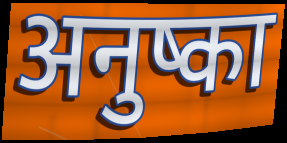
अनुष्का